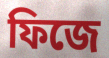
ফিজে